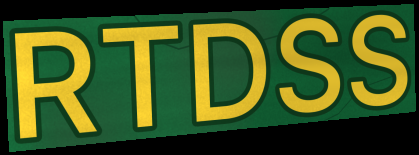
RTDSS